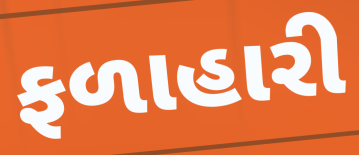
ફળાહારી